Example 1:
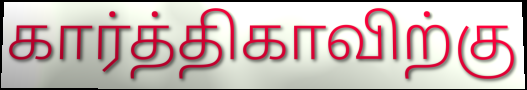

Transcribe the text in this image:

கார்த்திகாவிற்கு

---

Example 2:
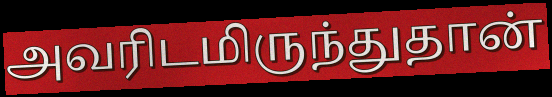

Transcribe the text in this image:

அவரிடமிருந்துதான்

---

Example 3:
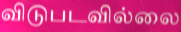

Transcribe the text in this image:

விடுபடவில்லை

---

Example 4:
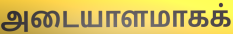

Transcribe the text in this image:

அடையாளமாகக்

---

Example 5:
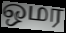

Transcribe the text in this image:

ஒமர